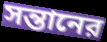
সন্তানের